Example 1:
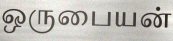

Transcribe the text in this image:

ஒருபையன்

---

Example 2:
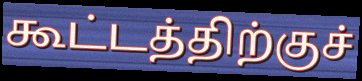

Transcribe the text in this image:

கூட்டத்திற்குச்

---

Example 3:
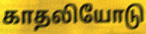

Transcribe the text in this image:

காதலியோடு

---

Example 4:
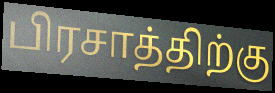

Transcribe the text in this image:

பிரசாத்திற்கு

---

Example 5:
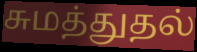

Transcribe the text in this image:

சுமத்துதல்